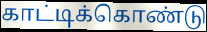
காட்டிக்கொண்டு